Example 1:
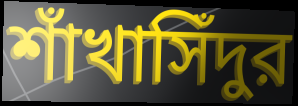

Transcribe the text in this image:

শাঁখাসিঁদুর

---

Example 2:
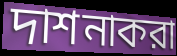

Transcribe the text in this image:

দাশনাকরা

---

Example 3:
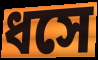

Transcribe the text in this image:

ধসে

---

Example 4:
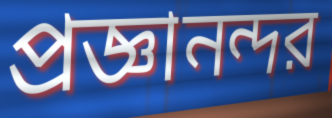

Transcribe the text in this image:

প্রজ্ঞানন্দর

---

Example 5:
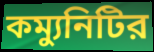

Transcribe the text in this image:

কম্যুনিটির